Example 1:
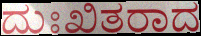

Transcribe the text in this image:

ದುಃಖಿತರಾದ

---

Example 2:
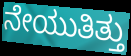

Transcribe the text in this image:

ನೇಯುತಿತ್ತು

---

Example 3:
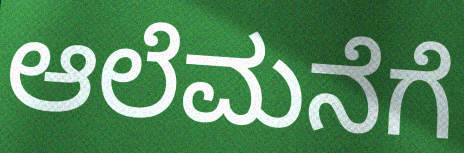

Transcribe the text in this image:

ಆಲೆಮನೆಗೆ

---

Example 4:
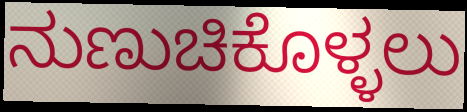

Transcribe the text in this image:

ನುಣುಚಿಕೊಳ್ಳಲು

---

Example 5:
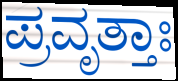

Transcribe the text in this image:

ಪ್ರವೃತ್ತಾಃ